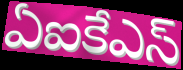
ఏఐకేఎస్